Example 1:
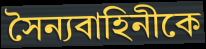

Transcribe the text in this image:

সৈন্যবাহিনীকে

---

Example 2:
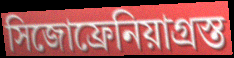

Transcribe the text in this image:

সিজোফ্রেনিয়াগ্রস্ত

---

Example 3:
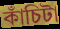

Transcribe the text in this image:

কাঁচিটা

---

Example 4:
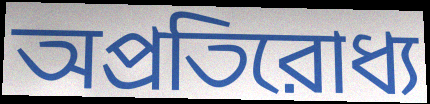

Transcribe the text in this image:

অপ্রতিরোধ্য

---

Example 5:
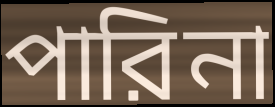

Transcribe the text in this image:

পারিনা